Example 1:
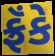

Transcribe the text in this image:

ફ્રૅંકે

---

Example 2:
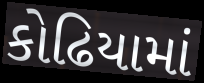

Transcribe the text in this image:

કોઢિયામાં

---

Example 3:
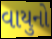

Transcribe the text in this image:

વાયુનો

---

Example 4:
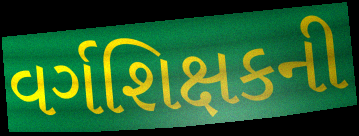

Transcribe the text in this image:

વર્ગશિક્ષકની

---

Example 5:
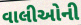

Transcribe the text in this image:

વાલીઓની